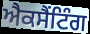
ਐਕਸੈਂਟਿੰਗ